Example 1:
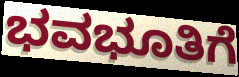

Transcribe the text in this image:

ಭವಭೂತಿಗೆ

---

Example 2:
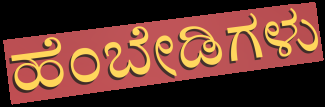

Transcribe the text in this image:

ಹೆಂಬೇಡಿಗಳು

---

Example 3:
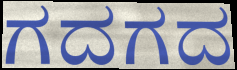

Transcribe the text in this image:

ಗದಗದ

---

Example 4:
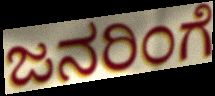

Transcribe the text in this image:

ಜನರಿಂಗೆ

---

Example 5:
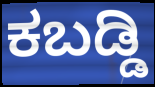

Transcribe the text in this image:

ಕಬಡ್ಡಿ